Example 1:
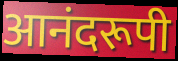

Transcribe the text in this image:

आनंदरूपी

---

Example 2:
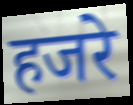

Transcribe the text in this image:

हजरे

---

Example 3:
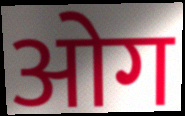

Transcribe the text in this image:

ओग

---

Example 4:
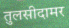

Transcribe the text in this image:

तुलसीदामर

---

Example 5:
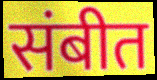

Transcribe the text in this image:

संबीत